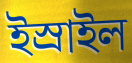
ইস্রাইল